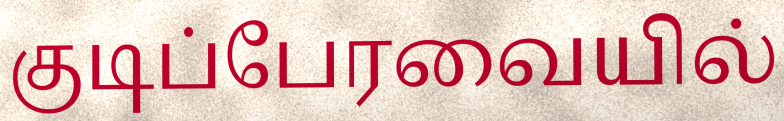
குடிப்பேரவையில்